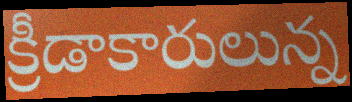
క్రీడాకారులున్న